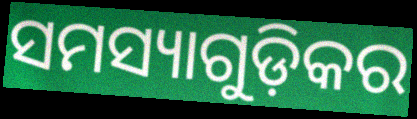
ସମସ୍ୟାଗୁଡ଼ିକର